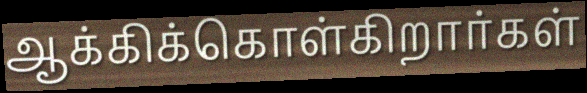
ஆக்கிக்கொள்கிறார்கள்